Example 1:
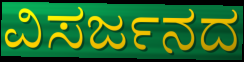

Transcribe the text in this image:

ವಿಸರ್ಜನದ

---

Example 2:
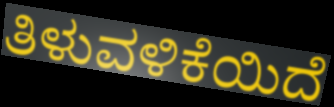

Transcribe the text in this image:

ತಿಳುವಳಿಕೆಯಿದೆ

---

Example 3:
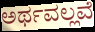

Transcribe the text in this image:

ಅರ್ಥವಲ್ಲವೆ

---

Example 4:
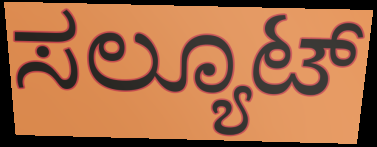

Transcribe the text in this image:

ಸಲ್ಯೂಟ್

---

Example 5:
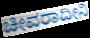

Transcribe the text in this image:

ಚೀವರಾದೀನಿ